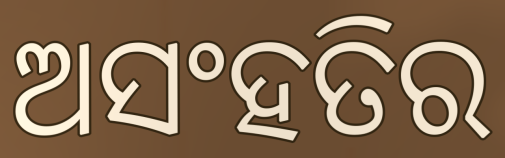
ଅସଂହତିର